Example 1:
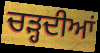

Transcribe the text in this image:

ਚੜ੍ਹਦੀਆਂ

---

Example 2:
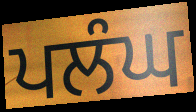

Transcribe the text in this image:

ਪਲੰਘ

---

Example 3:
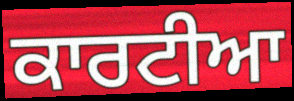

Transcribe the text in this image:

ਕਾਰਟੀਆ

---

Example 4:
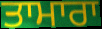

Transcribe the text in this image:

ਤਾਮਾਰਾ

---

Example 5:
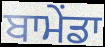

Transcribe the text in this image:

ਬਾਮੇਂਡਾ